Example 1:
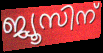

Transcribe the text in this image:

ജ്യൂസിന്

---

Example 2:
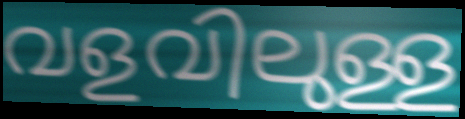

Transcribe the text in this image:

വളവിലുള്ള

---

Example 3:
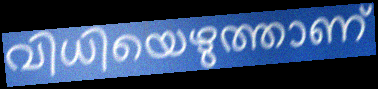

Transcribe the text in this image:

വിധിയെഴുത്താണ്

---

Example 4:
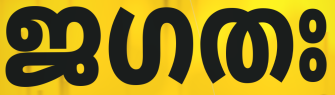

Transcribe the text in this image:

ജഗതഃ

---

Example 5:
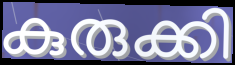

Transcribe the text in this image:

കുരുക്കി